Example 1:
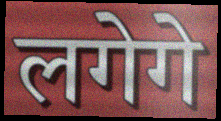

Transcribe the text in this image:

लगेगे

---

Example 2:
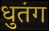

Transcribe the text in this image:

धुतंग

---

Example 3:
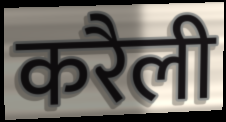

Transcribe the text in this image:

करैली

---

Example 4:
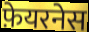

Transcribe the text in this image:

फ़ेयरनेस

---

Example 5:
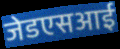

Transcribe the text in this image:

जेडएसआई